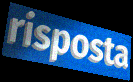
risposta